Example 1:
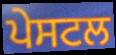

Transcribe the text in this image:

ਪੇਸਟਲ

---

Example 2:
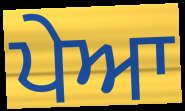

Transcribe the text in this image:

ਪੇਆ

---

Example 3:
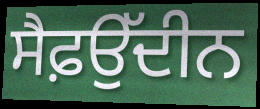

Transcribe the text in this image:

ਸੈਫ਼ਉੱਦੀਨ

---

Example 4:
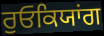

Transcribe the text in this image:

ਰੁਓਕਿਯਾਂਗ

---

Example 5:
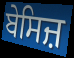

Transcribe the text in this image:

ਬੇਸਿਜ਼